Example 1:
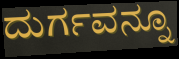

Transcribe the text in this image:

ದುರ್ಗವನ್ನೂ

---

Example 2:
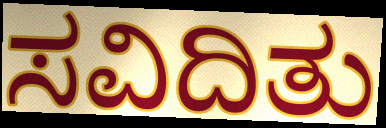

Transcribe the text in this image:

ಸವಿದಿತು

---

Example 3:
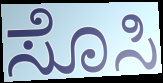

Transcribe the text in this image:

ಸೊಸಿ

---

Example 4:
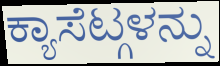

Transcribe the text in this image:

ಕ್ಯಾಸೆಟ್ಗಳನ್ನು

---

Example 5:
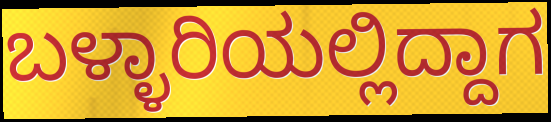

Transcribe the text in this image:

ಬಳ್ಳಾರಿಯಲ್ಲಿದ್ದಾಗ